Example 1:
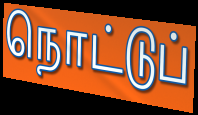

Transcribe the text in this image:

நொட்டுப்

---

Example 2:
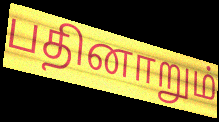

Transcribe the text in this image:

பதினாறும்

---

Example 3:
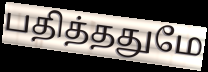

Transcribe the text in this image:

பதித்ததுமே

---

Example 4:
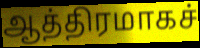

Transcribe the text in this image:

ஆத்திரமாகச்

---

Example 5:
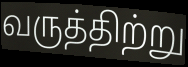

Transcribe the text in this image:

வருத்திற்று